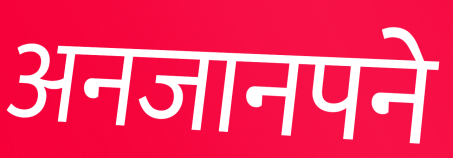
अनजानपने